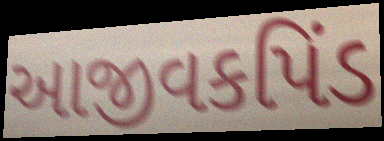
આજીવકપિંડ